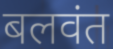
बलवंत